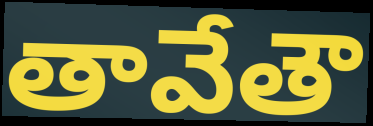
తావేతౌ